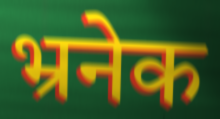
भ्रनेक